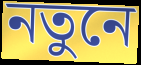
নতুনে